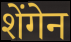
शेंगेन